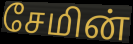
சேமின்